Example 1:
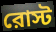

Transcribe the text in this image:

রোস্ট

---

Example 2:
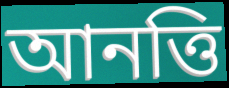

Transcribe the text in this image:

আনত্তি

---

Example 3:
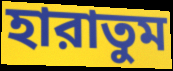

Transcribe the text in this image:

হারাতুম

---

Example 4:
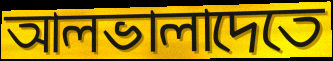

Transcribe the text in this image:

আলভালাদেতে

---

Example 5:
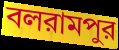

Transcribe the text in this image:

বলরামপুর